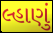
લ્હાણું